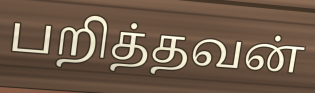
பறித்தவன்